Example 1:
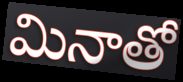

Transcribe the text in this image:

మినాతో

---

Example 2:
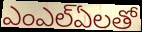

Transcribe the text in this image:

ఎంఎల్ఏలతో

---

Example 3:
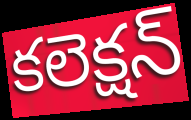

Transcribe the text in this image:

కలెక్షన్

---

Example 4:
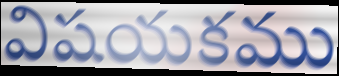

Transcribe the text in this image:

విషయకము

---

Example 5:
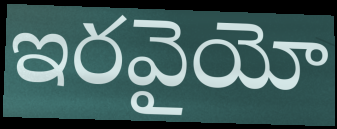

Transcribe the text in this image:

ఇరవైయో